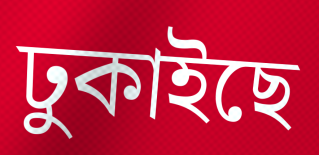
ঢুকাইছে